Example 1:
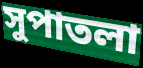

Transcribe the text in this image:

সুপাতলা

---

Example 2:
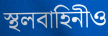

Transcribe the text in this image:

স্থলবাহিনীও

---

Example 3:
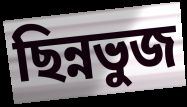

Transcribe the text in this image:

ছিন্নভুজ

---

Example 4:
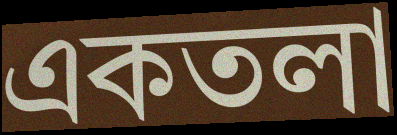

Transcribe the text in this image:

একতলা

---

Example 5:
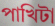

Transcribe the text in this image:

পাখিটা